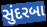
સુંદરબા